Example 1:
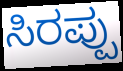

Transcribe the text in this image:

ಸಿರಪ್ಪು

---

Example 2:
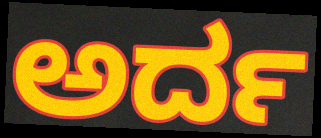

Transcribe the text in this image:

ಅರ್ದ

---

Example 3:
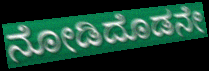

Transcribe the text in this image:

ನೋಡಿದೊಡನೇ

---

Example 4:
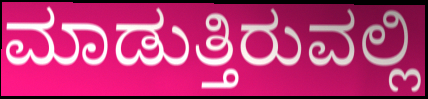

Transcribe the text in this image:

ಮಾಡುತ್ತಿರುವಲ್ಲಿ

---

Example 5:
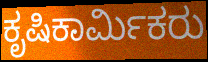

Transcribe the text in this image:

ಕೃಷಿಕಾರ್ಮಿಕರು